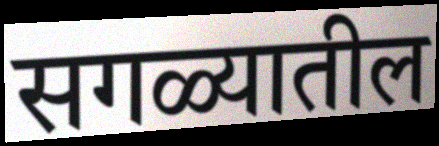
सगळ्यातील